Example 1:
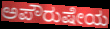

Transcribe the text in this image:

ಅಪೌರುಷೇಯ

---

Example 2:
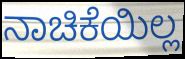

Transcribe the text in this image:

ನಾಚಿಕೆಯಿಲ್ಲ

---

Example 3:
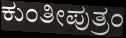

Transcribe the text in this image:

ಕುಂತೀಪುತ್ರಂ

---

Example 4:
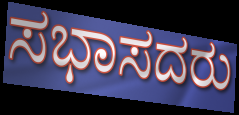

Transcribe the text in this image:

ಸಭಾಸದರು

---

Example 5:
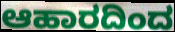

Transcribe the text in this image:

ಆಹಾರದಿಂದ